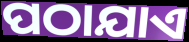
ପଠାଯାଏ